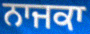
ਨਾਜਕਾ